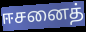
ஈசனைத்